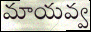
మాయవ్వ